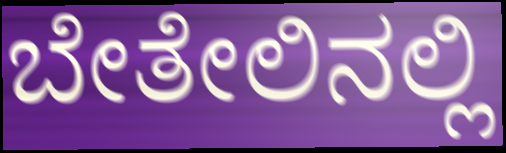
ಬೇತೇಲಿನಲ್ಲಿ